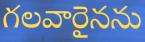
గలవారైనను